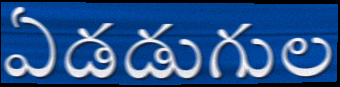
ఏడడుగుల